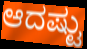
ಆದಷ್ಟು